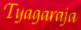
Tyagaraja